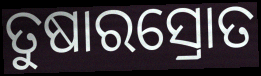
ତୁଷାରସ୍ରୋତ